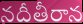
నదీతీరాన